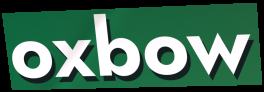
oxbow